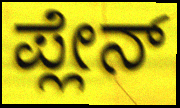
ಪ್ಲೇನ್